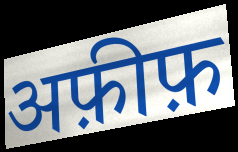
अफ़ीफ़